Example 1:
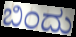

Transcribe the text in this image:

ಬಿಂದು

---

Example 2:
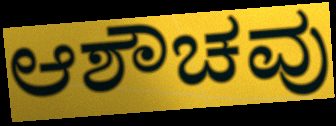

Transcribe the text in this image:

ಆಶೌಚವು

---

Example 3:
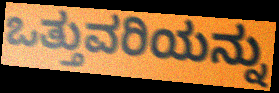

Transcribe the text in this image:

ಒತ್ತುವರಿಯನ್ನು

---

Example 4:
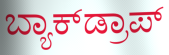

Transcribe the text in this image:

ಬ್ಯಾಕ್‌ಡ್ರಾಪ್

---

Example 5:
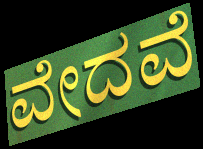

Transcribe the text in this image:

ವೇದವೆ